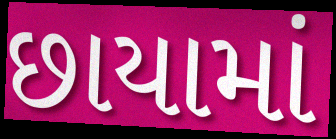
છાયામાં